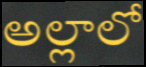
అల్లాలో